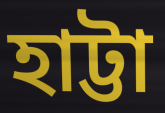
হাট্টা